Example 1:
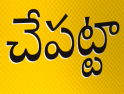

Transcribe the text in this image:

చేపట్టా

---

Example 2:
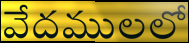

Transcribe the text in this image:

వేదములలో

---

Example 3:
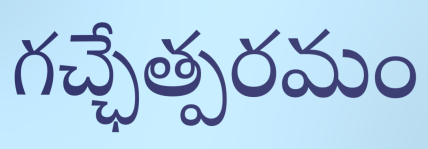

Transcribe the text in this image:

గచ్ఛేత్పరమం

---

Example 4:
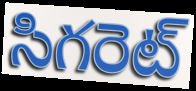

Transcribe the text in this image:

సిగరెట్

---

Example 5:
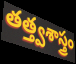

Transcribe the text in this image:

తత్త్వశాస్త్రం